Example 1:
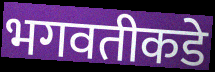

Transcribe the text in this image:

भगवतीकडे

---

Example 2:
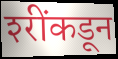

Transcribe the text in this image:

श्रींकडून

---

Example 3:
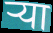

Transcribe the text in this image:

ऱ्या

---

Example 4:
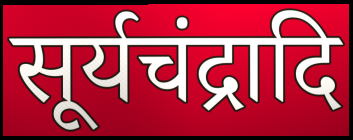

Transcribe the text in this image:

सूर्यचंद्रादि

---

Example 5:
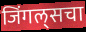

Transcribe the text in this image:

जिंगल्सचा